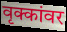
वृक्कांवर